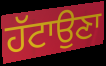
ਹੱਟਾਉਣਾ